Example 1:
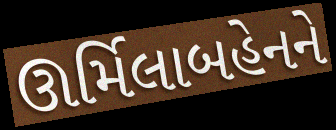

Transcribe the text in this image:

ઊર્મિલાબહેનને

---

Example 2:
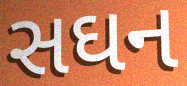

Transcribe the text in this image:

સઘન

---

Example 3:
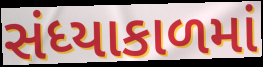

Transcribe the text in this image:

સંધ્યાકાળમાં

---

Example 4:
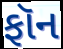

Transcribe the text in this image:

ફૉન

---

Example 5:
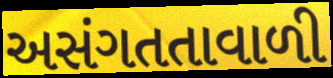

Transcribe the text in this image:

અસંગતતાવાળી